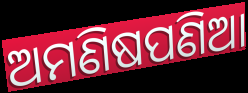
ଅମଣିଷପଣିଆ